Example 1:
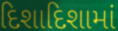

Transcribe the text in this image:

દિશાદિશામાં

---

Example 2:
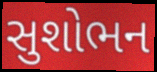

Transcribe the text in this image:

સુશોભન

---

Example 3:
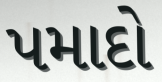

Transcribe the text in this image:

પમાદો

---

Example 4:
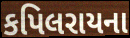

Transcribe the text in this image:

કપિલરાયના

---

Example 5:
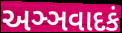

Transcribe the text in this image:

અઞ્ઞવાદકં